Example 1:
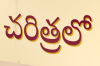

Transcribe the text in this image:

చరిత్రలో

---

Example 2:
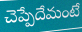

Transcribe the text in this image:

చెప్పేదేమంటే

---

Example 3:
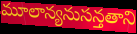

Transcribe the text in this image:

మూలాన్యనుసన్తతాని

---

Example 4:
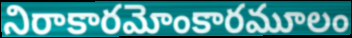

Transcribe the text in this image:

నిరాకారమోంకారమూలం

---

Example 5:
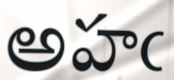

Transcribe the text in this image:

అహఁ